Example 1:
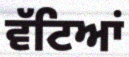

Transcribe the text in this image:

ਵੱਟਿਆਂ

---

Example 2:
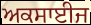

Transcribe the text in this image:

ਅਕਸਾਈਜ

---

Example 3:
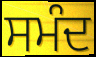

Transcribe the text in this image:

ਸਮੰਦ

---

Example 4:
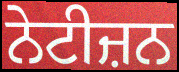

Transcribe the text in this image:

ਨੇਟੀਜ਼ਨ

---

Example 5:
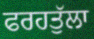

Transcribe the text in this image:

ਫਰਹਤੁੱਲਾ